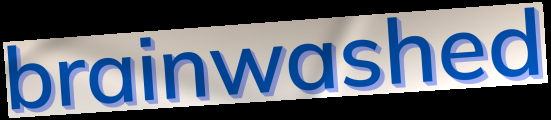
brainwashed